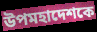
উপমহাদেশকে